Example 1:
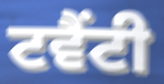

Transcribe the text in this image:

ਟਵੈਂਟੀ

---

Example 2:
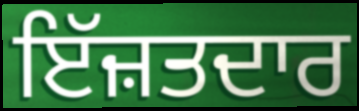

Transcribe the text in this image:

ਇੱਜ਼ਤਦਾਰ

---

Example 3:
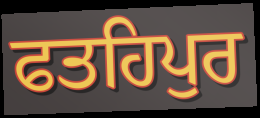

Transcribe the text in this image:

ਫਤਹਿਪੁਰ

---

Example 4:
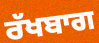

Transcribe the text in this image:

ਰੱਖਬਾਗ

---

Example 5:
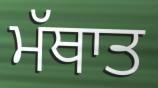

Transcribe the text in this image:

ਮੱਥਾਤ